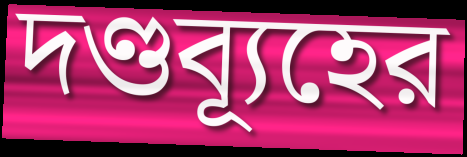
দণ্ডব্যূহের